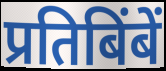
प्रतिबिंबें